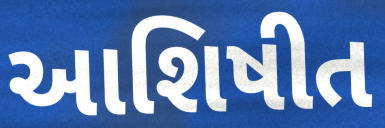
આશિષીત